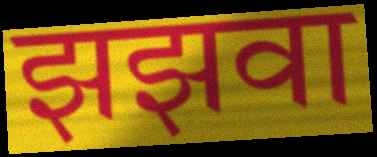
झझवा